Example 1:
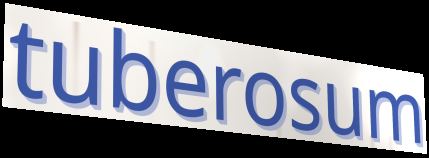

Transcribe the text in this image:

tuberosum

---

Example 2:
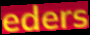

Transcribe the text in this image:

eders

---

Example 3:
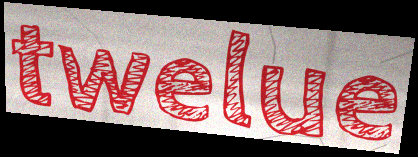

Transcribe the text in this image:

twelue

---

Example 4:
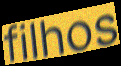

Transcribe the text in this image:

filhos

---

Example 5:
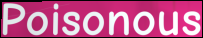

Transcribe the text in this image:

Poisonous